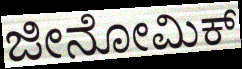
ಜೀನೋಮಿಕ್